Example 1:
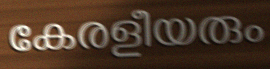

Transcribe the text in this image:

കേരളീയരും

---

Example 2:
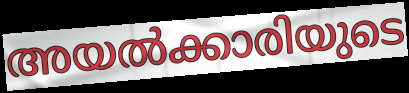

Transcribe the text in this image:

അയൽക്കാരിയുടെ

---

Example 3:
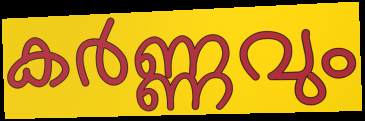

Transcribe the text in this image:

കർണ്ണവും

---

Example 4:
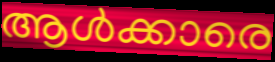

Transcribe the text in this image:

ആൾക്കാരെ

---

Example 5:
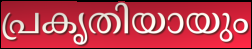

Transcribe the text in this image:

പ്രകൃതിയായും